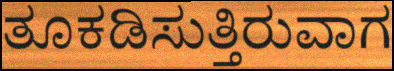
ತೂಕಡಿಸುತ್ತಿರುವಾಗ